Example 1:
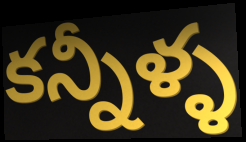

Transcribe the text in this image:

కన్నీళ్ళ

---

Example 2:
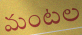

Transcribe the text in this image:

మంటల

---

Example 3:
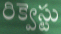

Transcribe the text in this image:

రిక్వెస్టు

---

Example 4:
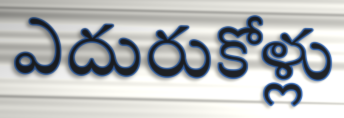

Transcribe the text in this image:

ఎదురుకోళ్లు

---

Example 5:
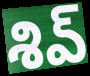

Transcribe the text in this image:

శివ్